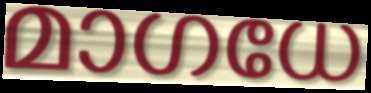
മാഗധേ